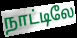
நாட்டிலே